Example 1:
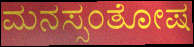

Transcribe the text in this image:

ಮನಸ್ಸಂತೋಷ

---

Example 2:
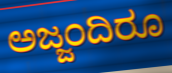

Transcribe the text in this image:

ಅಜ್ಜಂದಿರೂ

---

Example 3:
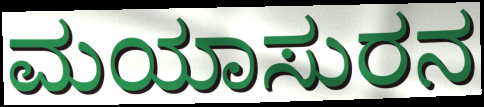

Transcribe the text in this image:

ಮಯಾಸುರನ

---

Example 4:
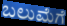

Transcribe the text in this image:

ಬಲುಮೆಗೆ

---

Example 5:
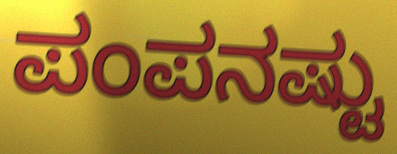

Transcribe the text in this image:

ಪಂಪನಷ್ಟು